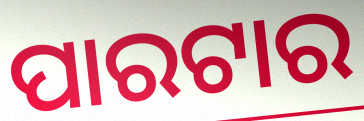
ପାରଟାର